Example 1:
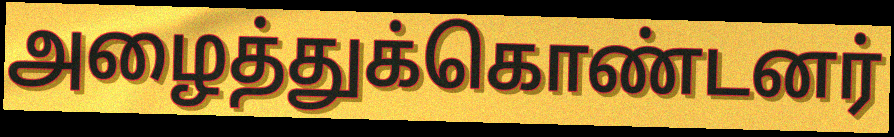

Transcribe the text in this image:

அழைத்துக்கொண்டனர்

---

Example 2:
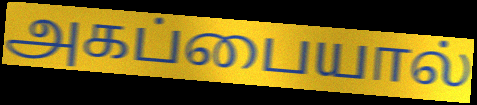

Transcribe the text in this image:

அகப்பையால்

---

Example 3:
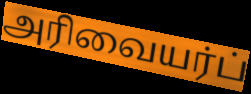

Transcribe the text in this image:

அரிவையர்ப்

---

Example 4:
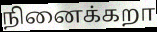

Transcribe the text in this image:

நினைக்கறா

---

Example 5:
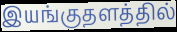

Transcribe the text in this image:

இயங்குதளத்தில்